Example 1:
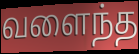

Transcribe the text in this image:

வளைந்த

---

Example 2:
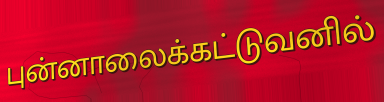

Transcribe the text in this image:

புன்னாலைக்கட்டுவனில்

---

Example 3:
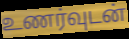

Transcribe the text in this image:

உணர்வுடன்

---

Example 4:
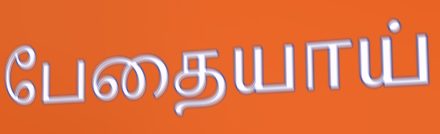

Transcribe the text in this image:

பேதையாய்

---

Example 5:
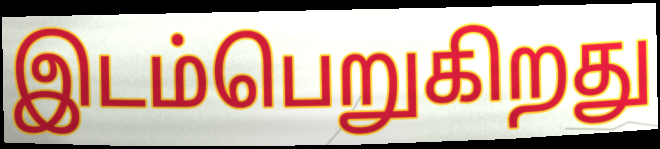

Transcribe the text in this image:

இடம்பெறுகிறது